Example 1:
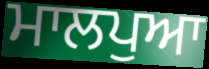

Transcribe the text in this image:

ਮਾਲਪੁਆ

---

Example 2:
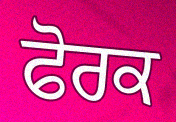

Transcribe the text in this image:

ਫੋਰਕ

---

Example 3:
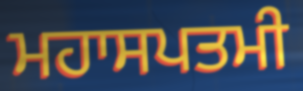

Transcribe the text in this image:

ਮਹਾਸਪਤਮੀ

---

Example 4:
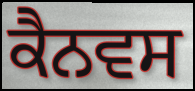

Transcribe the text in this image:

ਕੈਨਵਸ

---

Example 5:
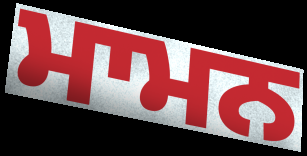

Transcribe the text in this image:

ਮਾਮਨ